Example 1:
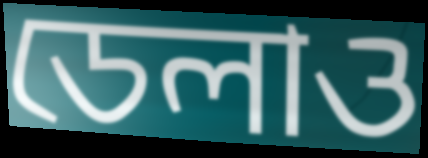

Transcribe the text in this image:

ডেলাও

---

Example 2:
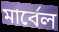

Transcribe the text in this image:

মার্বেল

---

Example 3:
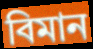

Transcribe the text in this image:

বিমান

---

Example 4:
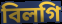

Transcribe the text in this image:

বিলগি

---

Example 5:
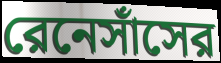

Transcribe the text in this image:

রেনেসাঁসের